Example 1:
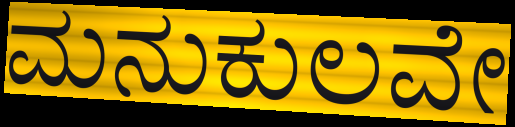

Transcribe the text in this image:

ಮನುಕುಲವೇ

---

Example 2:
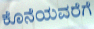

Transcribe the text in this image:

ಕೊನೆಯವರೆಗೆ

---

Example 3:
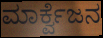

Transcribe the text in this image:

ಮಾರ್ಕ್ವೆಜನ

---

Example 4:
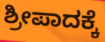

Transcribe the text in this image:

ಶ್ರೀಪಾದಕ್ಕೆ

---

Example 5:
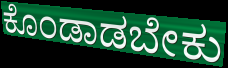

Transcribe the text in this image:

ಕೊಂಡಾಡಬೇಕು